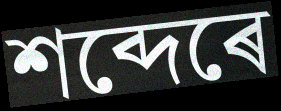
শব্দেৰে